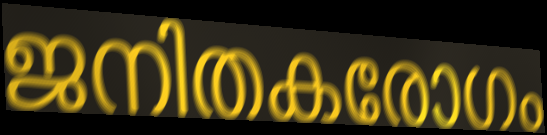
ജനിതകരോഗം